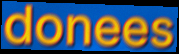
donees